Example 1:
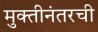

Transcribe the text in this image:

मुक्तीनंतरची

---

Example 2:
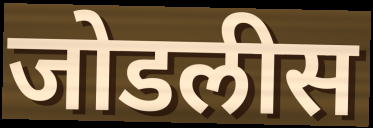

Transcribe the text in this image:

जोडलीस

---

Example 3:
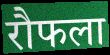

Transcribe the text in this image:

रौफला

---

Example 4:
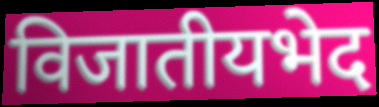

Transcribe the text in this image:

विजातीयभेद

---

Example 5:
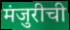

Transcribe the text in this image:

मंजुरीची